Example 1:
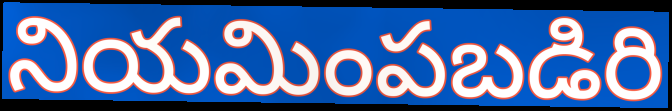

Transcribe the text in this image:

నియమింపబడిరి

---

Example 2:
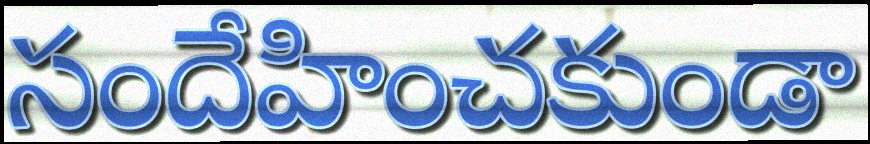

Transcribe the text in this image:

సందేహించకుండా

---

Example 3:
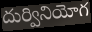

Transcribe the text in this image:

దుర్వినియోగ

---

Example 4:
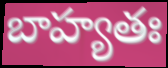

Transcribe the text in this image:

బాహ్యతః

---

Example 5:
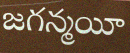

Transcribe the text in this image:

జగన్మయీ